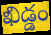
ఖిడ్డం